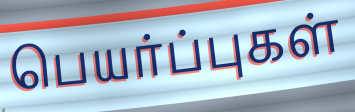
பெயர்ப்புகள்